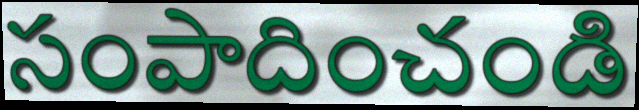
సంపాదించండి